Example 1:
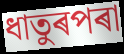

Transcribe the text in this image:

ধাতুৰপৰা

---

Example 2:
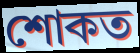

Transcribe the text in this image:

শোকত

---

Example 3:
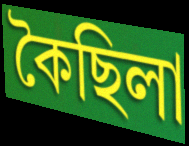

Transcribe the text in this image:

কৈছিলা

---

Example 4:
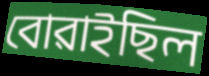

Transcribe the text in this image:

বোৱাইছিল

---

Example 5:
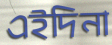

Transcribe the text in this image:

এইদিনা